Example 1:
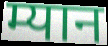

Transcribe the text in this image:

म्यान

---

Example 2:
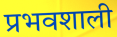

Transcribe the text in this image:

प्रभवशाली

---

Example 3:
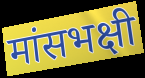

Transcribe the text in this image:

मांसभक्षी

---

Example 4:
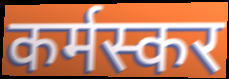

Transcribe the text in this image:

कर्मस्कर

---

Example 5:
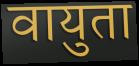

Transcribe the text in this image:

वायुता